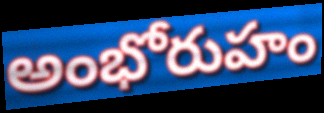
అంభోరుహం